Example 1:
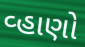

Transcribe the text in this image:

વ્હાણો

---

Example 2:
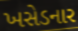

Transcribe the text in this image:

ખસેડનાર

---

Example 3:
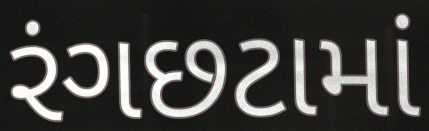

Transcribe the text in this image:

રંગછટામાં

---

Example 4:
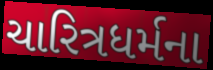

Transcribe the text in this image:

ચારિત્રધર્મના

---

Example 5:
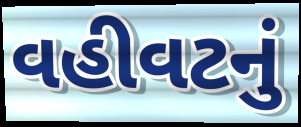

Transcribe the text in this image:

વહીવટનું